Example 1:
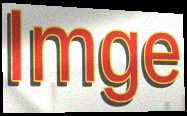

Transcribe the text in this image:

Imge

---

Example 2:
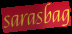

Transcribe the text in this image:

sarasbag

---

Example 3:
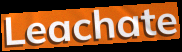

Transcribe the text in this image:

Leachate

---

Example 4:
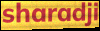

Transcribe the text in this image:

sharadji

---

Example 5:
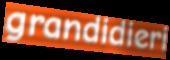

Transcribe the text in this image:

grandidieri